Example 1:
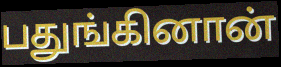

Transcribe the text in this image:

பதுங்கினான்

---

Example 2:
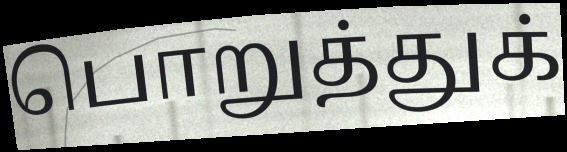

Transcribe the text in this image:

பொறுத்துக்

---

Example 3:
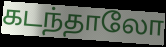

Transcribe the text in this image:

கடந்தாலோ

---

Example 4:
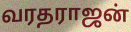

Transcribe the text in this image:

வரதராஜன்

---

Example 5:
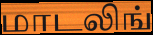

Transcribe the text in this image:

மாடலிங்